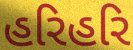
હરિહરિ